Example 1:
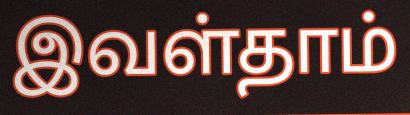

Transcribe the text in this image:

இவள்தாம்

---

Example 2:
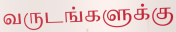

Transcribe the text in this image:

வருடங்களுக்கு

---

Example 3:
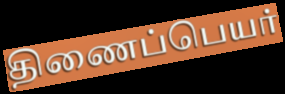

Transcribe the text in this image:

திணைப்பெயர்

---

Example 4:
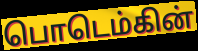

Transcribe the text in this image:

பொடெம்கின்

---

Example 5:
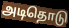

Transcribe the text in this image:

அடிதொடு